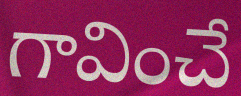
గావించే